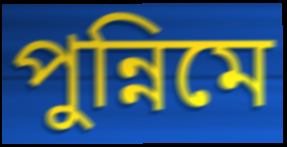
পুন্নিমে